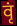
वृं